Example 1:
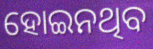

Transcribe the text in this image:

ହୋଇନଥିବ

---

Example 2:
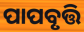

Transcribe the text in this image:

ପାପବୃତ୍ତି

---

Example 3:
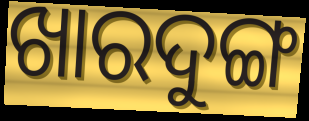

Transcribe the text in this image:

ଖାରଦୁଙ୍ଗ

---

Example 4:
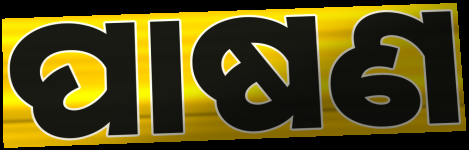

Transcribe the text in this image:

ପାଷଣ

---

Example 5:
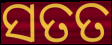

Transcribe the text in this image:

ସତତ